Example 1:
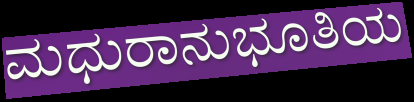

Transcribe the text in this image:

ಮಧುರಾನುಭೂತಿಯ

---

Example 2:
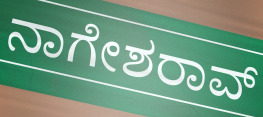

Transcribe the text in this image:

ನಾಗೇಶರಾವ್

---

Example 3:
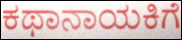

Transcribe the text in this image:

ಕಥಾನಾಯಕಿಗೆ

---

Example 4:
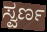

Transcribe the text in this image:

ಸ್ವರ್ಣ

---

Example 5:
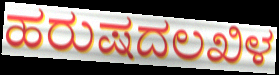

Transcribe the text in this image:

ಹರುಷದಲಖಿಳ